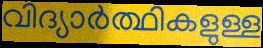
വിദ്യാർത്ഥികളുള്ള